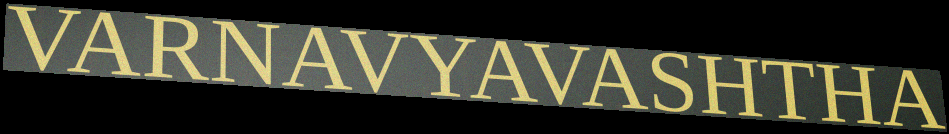
VARNAVYAVASHTHA